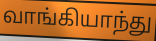
வாங்கியாந்து